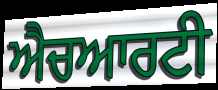
ਐਚਆਰਟੀ